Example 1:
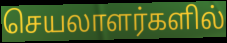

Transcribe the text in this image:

செயலாளர்களில்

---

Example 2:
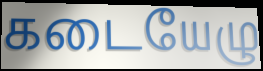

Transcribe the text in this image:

கடையேழு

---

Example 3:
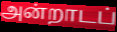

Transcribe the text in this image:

அன்றாடப்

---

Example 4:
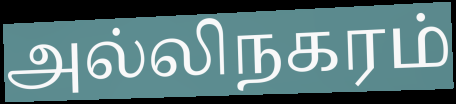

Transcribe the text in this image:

அல்லிநகரம்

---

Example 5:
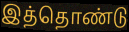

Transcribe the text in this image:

இத்தொண்டு